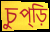
চুপ্‌ড়ি